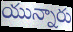
యున్నారు